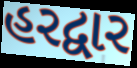
હરદ્વાર